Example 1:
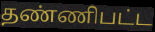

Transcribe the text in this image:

தண்ணிபட்ட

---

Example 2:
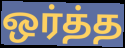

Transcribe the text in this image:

ஒர்த்த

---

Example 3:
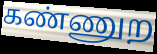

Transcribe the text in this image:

கண்ணுற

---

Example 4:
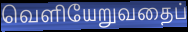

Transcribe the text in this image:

வெளியேறுவதைப்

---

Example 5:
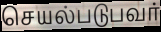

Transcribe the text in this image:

செயல்படுபவர்